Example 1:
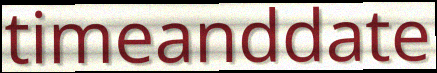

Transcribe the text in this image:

timeanddate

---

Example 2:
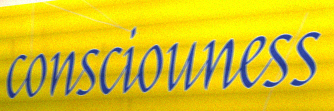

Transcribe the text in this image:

consciouness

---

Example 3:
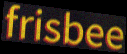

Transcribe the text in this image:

frisbee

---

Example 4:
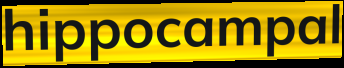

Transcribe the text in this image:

hippocampal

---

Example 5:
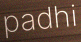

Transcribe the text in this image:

padhi